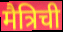
मैत्रिची